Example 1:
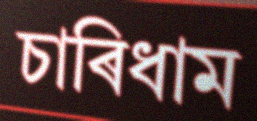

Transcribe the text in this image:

চাৰিধাম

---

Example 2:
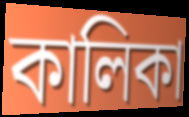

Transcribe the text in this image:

কালিকা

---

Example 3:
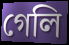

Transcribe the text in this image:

গেলি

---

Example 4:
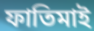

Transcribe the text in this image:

ফাতিমাই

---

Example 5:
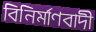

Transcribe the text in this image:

বিনিৰ্মাণবাদী